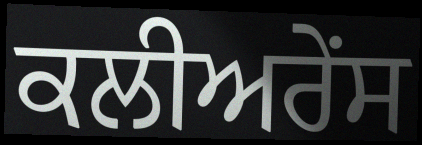
ਕਲੀਅਰੇਂਸ